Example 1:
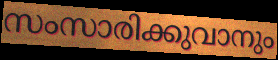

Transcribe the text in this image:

സംസാരിക്കുവാനും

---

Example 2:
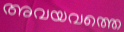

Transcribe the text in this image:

അവയവത്തെ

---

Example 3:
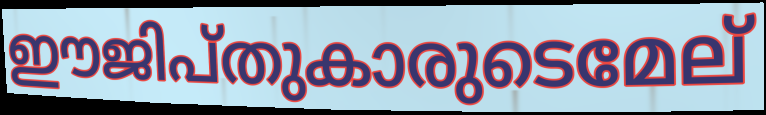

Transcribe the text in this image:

ഈജിപ്തുകാരുടെമേല്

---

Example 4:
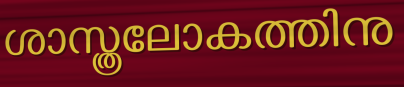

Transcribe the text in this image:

ശാസ്ത്രലോകത്തിനു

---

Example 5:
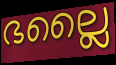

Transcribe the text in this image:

ഭല്ലൈ